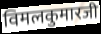
विमलकुमारजी